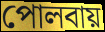
পোলবায়